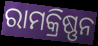
ରାମକ୍ରିଷ୍ଣନ